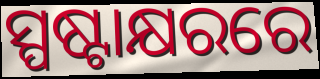
ସ୍ପଷ୍ଟାକ୍ଷରରେ